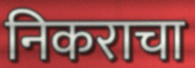
निकराचा